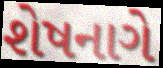
શેષનાગે